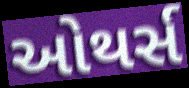
ઓથર્સ